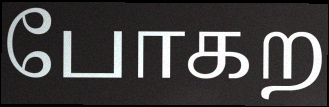
போகற